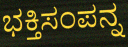
ಭಕ್ತಿಸಂಪನ್ನ